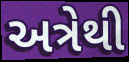
અત્રેથી